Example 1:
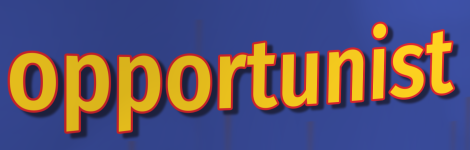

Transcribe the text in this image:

opportunist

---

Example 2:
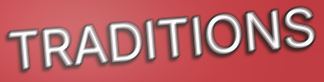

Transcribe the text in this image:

TRADITIONS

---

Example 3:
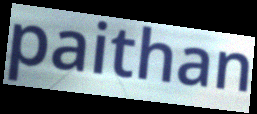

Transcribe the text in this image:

paithan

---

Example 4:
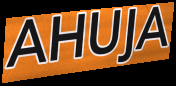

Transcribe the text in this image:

AHUJA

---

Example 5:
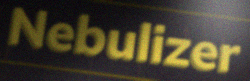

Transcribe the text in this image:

Nebulizer